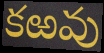
కఱవు